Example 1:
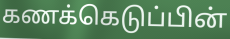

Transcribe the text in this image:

கணக்கெடுப்பின்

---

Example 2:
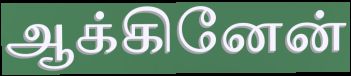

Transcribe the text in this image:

ஆக்கினேன்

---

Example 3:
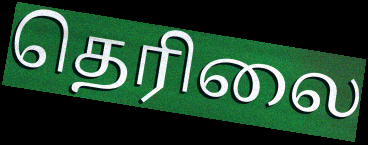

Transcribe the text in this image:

தெரிலை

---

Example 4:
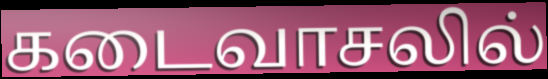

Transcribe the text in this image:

கடைவாசலில்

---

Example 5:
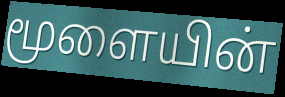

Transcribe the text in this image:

மூளையின்